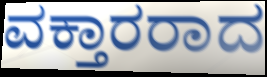
ವಕ್ತಾರರಾದ